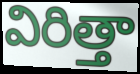
విరిత్తా